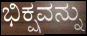
ಭಿಕ್ಷವನ್ನು